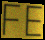
FE